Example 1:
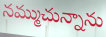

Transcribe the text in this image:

నమ్ముచున్నాను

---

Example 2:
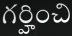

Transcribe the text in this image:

గర్హించి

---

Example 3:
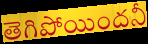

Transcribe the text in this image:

తెగిపోయిందనీ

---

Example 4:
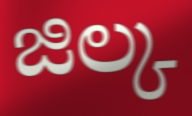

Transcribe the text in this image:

జిల్క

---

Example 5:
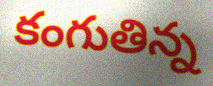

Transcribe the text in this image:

కంగుతిన్న